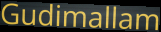
Gudimallam